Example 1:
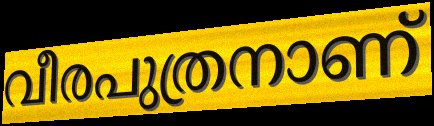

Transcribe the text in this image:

വീരപുത്രനാണ്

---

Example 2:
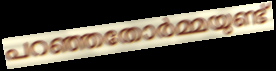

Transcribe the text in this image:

പറഞ്ഞതോർമ്മയുണ്ട്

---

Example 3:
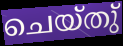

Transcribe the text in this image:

ചെയ്തു്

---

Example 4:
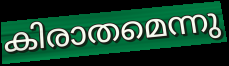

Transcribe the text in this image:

കിരാതമെന്നു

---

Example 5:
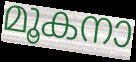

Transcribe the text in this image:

മൂകനാ